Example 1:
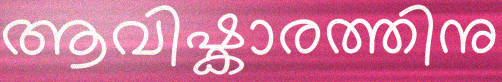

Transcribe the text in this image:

ആവിഷ്കാരത്തിനു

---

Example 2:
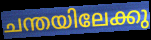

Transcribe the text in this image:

ചന്തയിലേക്കു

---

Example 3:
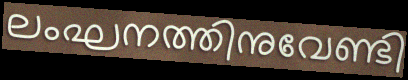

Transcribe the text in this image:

ലംഘനത്തിനുവേണ്ടി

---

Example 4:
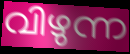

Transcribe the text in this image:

വിഴുന്ന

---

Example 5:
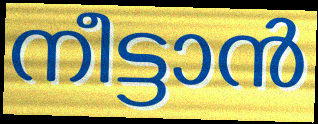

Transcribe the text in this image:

നീട്ടാൻ